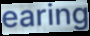
earing